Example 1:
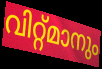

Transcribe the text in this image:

വിറ്റ്മാനും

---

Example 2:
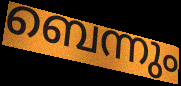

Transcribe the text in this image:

ബെന്നും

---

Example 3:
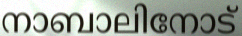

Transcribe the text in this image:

നാബാലിനോട്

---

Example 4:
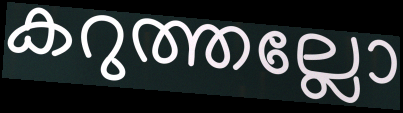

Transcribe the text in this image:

കറുത്തല്ലോ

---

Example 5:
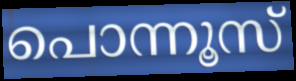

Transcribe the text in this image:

പൊന്നൂസ്